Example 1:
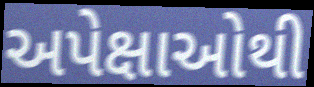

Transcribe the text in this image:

અપેક્ષાઓથી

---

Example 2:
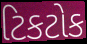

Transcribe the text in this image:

ટિકટોક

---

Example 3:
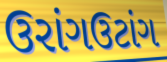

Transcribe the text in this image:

ઉરાંગઉટાંગ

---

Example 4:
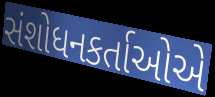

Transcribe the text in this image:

સંશોધનકર્તાઓએ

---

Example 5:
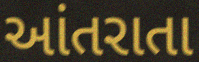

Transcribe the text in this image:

આંતરાતા